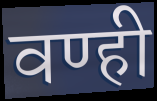
वण्ही